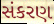
સંકરણ